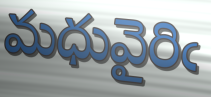
మధువైరిఁ